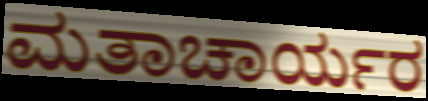
ಮತಾಚಾರ್ಯರ